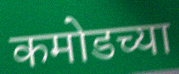
कमोडच्या